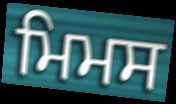
ਮਿਮਸ